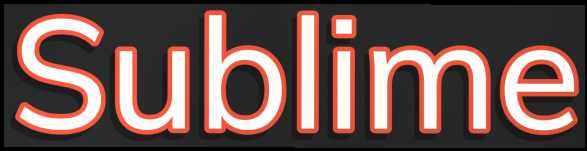
Sublime